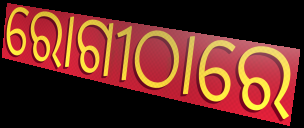
ରୋଗୀଠାରେ